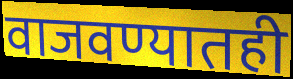
वाजवण्यातही